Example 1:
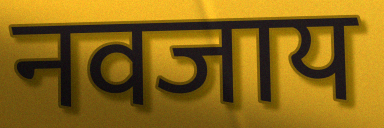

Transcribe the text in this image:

नवजाय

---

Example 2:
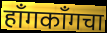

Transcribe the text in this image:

हॉंगकॉंगचा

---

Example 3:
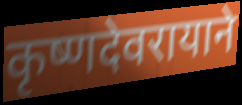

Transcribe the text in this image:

कृष्णदेवरायाने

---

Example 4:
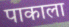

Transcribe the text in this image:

पाकाला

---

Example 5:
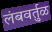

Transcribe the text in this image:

लंबवर्तुळ